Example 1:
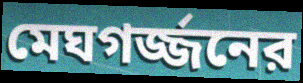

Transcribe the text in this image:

মেঘগর্জ্জনের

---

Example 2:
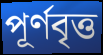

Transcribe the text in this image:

পূর্ণবৃত্ত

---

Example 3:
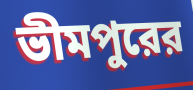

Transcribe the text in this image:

ভীমপুরের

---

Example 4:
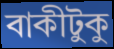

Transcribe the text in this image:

বাকীটুকু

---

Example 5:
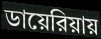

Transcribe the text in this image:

ডায়েরিয়ায়